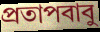
প্রতাপবাবু